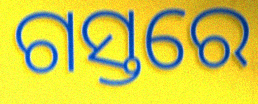
ଗସ୍ତରେ